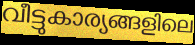
വീട്ടുകാര്യങ്ങളിലെ